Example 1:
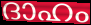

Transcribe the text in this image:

ദാഹം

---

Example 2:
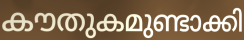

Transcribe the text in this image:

കൗതുകമുണ്ടാക്കി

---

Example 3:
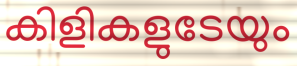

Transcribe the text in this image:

കിളികളുടേയും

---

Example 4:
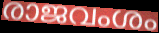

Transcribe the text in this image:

രാജവംശം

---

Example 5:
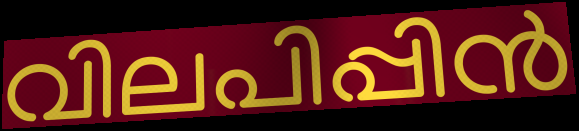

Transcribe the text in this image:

വിലപിപ്പിൻ